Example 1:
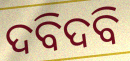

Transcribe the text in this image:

ଦବିଦବି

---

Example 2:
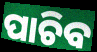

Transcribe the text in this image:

ପାଚିବ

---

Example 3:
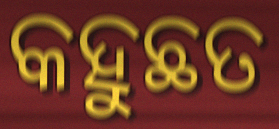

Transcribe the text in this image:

କହୁଛତ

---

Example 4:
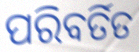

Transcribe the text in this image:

ପରିବର୍ତିତ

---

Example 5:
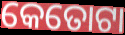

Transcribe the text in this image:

କେତୋଟା